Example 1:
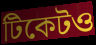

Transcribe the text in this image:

টিকেটও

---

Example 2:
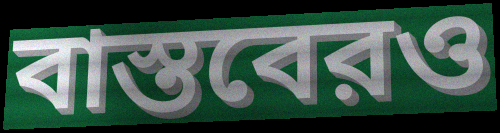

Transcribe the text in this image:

বাস্তবেরও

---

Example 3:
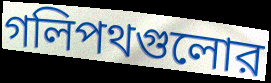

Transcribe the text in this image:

গলিপথগুলোর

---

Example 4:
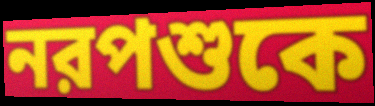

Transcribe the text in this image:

নরপশুকে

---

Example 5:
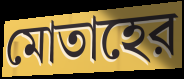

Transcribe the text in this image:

মোতাহের